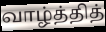
வாழ்த்தித்